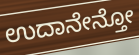
ಉದಾನೇನ್ತೋ